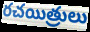
రచయిత్రులు